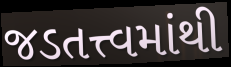
જડતત્ત્વમાંથી